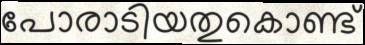
പോരാടിയതുകൊണ്ട്